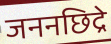
जननछिद्रे